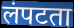
लंपटता